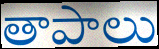
తాపాలు